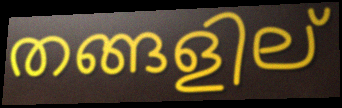
തങ്ങളില്